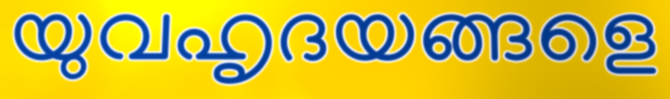
യുവഹൃദയങ്ങളെ